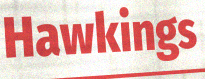
Hawkings